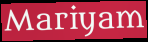
Mariyam